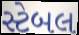
સ્ટેબલ